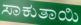
ಸಾಕುತಾಯಿ